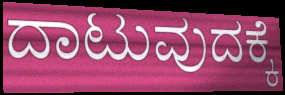
ದಾಟುವುದಕ್ಕೆ